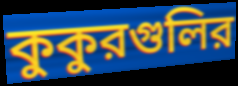
কুকুরগুলির